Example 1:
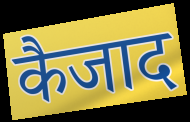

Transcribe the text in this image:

कैजाद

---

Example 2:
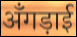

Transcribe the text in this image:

अँगड़ाई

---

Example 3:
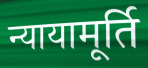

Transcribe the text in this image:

न्यायामूर्ति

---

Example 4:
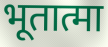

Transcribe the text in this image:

भूतात्मा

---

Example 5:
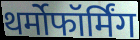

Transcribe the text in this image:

थर्मोफॉर्मिंग